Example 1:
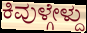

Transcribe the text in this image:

ಕಿವುಳ್ಗೇಳ್ದು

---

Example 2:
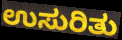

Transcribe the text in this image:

ಉಸುರಿತು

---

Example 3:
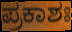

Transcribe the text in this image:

ಪ್ರಕಾಶಃ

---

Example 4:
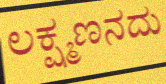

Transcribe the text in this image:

ಲಕ್ಷ್ಮಣನದು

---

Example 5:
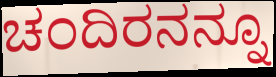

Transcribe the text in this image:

ಚಂದಿರನನ್ನೂ